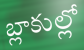
బ్లాకుల్లో